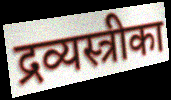
द्रव्यस्त्रीका